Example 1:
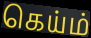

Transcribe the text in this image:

கெய்ம்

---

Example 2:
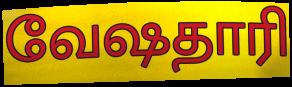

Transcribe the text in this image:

வேஷதாரி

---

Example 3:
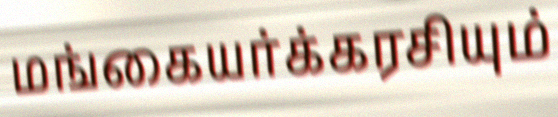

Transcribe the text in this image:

மங்கையர்க்கரசியும்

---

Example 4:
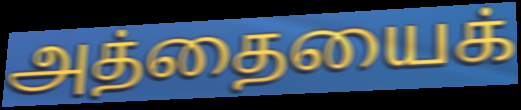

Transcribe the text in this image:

அத்தையைக்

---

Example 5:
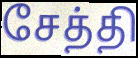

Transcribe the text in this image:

சேத்தி